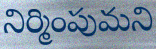
నిర్మింపుమని